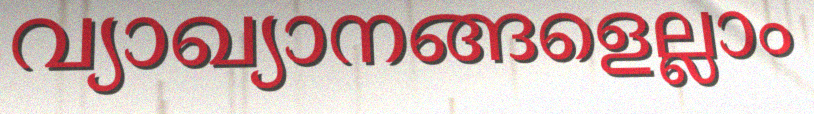
വ്യാഖ്യാനങ്ങളെല്ലാം